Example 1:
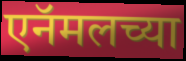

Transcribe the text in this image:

एनॅमलच्या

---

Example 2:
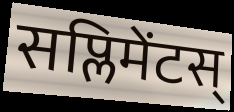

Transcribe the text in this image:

सप्लिमेंटस्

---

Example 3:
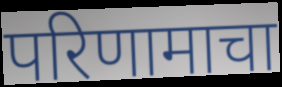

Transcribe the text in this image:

परिणामाचा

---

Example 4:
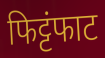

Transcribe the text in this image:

फिट्टंफाट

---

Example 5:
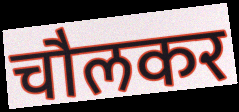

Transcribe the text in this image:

चौलकर